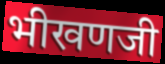
भीखणजी